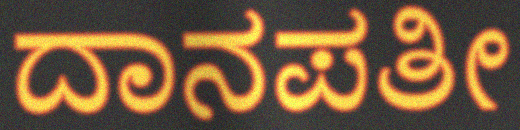
ದಾನಪತೀ